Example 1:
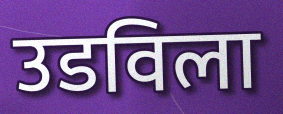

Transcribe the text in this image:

उडविला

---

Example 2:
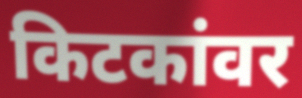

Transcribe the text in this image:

किटकांवर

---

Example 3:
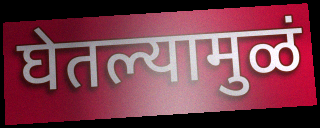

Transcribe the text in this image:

घेतल्यामुळं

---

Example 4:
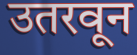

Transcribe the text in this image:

उतरवून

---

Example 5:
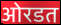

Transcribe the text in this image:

ओरडत